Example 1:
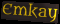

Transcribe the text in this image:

Emkay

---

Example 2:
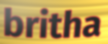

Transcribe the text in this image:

britha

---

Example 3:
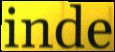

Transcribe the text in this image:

inde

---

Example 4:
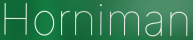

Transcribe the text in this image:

Horniman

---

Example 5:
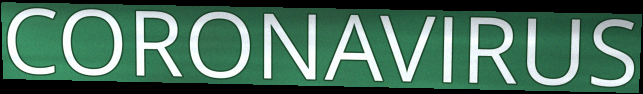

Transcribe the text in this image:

CORONAVIRUS